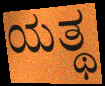
ಯತ್ಥ